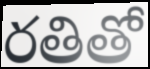
రతితో